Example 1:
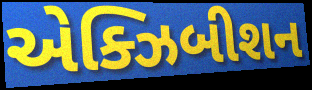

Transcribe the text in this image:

એક્ઝિબીશન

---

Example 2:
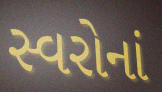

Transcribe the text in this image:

સ્વરોનાં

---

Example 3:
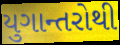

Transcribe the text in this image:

યુગાન્તરોથી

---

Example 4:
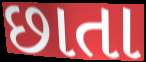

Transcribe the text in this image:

છાતા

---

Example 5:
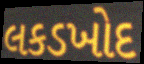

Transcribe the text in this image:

લકડખોદ